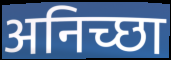
अनिच्छा